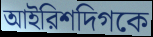
আইরিশদিগকে